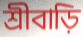
শ্রীবাড়ি